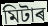
মিটাৰ